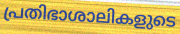
പ്രതിഭാശാലികളുടെ